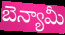
బెన్యామీ